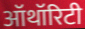
ऑथॉरिटी